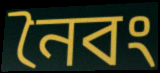
নৈবং